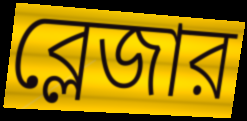
ব্লেজার